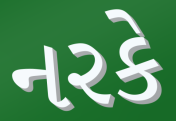
નરકે